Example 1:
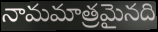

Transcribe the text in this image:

నామమాత్రమైనది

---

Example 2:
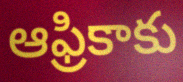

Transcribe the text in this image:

ఆఫ్రికాకు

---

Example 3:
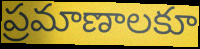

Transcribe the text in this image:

ప్రమాణాలకూ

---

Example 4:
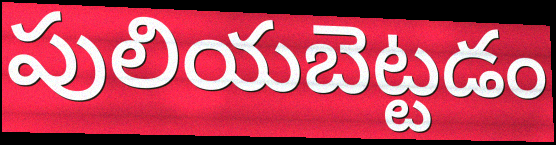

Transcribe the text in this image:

పులియబెట్టడం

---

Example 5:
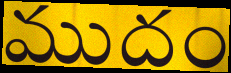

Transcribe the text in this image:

ముదం